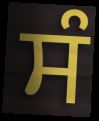
ਸੰ